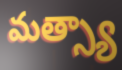
మత్స్యా